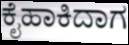
ಕೈಹಾಕಿದಾಗ